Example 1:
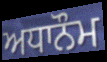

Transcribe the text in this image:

ਅਧਾਨੌਮ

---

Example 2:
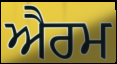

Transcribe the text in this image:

ਐਰਮ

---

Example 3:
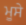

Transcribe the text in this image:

ਮੂਸੇ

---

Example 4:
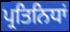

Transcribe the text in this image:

ਪ੍ਰਤਿਨਿਧਾਂ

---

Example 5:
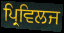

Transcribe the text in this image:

ਪ੍ਰਿਵਿਲਜ